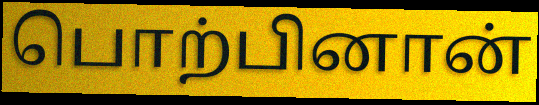
பொற்பினான்